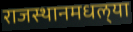
राजस्थानमधल्या